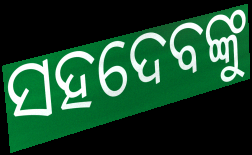
ସହଦେବଙ୍କୁ